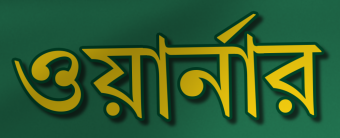
ওয়ার্নার